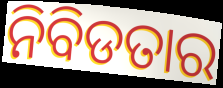
ନିବିଡତାର